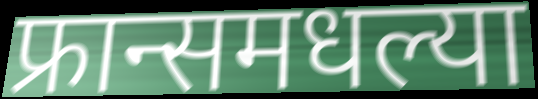
फ्रान्समधल्या